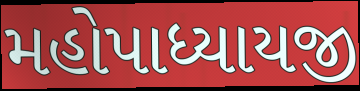
મહોપાધ્યાયજી